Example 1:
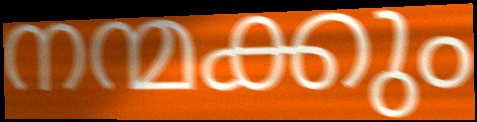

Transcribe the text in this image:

നന്മക്കും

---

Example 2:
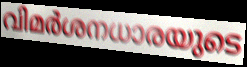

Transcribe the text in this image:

വിമർശനധാരയുടെ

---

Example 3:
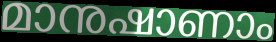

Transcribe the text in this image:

മാനുഷാണാം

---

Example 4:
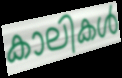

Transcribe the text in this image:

കാലികൾ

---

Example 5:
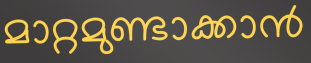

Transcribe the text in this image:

മാറ്റമുണ്ടാക്കാൻ